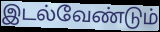
இடல்வேண்டும்